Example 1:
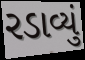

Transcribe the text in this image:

રડાવ્યું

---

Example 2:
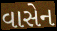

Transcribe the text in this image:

વાસેન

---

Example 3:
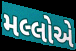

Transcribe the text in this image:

મલ્લોએ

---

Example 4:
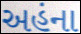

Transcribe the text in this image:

અહંના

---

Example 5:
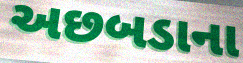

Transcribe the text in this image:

અછબડાના